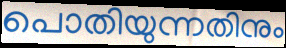
പൊതിയുന്നതിനും